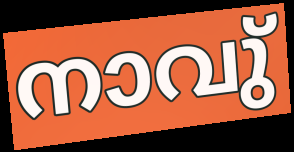
നാവു്